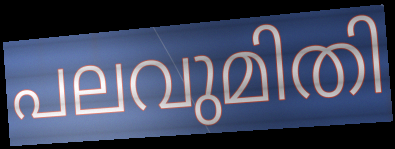
പലവുമിതി